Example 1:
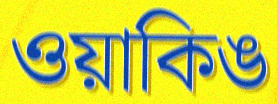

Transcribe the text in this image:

ওয়াকিঙ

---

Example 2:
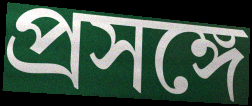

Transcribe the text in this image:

প্রসঙ্গে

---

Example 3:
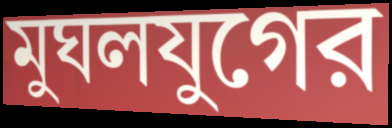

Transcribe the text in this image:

মুঘলযুগের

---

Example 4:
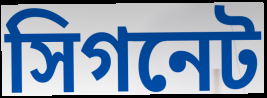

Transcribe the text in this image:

সিগনেট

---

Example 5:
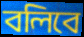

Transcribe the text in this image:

বলিবে